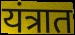
यंत्रात